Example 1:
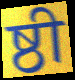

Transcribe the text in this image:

ष्ठी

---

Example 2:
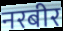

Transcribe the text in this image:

नरबीर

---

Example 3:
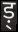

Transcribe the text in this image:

ड़्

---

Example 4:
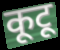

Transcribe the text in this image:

कूटू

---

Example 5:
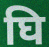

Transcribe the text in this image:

घि